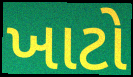
ખાટો